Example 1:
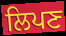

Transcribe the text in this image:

ਲਿਪਣ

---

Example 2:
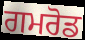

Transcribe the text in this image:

ਗਮਰੋਡ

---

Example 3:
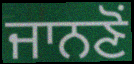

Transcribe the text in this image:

ਜਾਨਣੋਂ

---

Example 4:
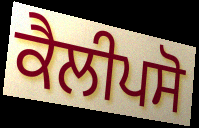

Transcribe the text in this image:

ਕੈਲੀਪਸੋ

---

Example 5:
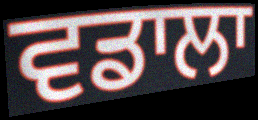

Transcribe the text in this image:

ਵਡਾਲਾ